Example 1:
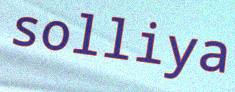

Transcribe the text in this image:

solliya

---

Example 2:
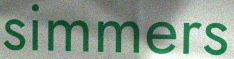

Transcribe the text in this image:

simmers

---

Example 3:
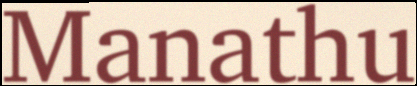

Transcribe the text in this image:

Manathu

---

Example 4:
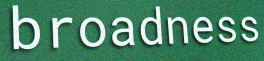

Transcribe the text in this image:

broadness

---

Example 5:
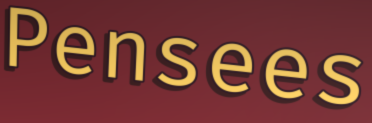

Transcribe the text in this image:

Pensees